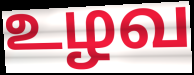
உழவ